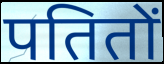
पतितों